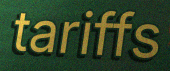
tariffs